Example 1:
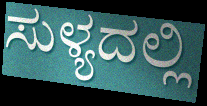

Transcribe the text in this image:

ಸುಳ್ಯದಲ್ಲಿ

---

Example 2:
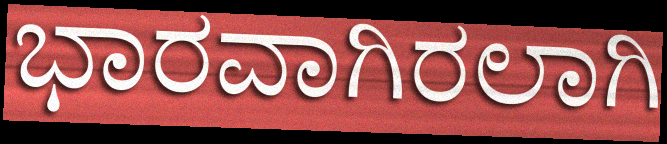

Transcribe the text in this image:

ಭಾರವಾಗಿರಲಾಗಿ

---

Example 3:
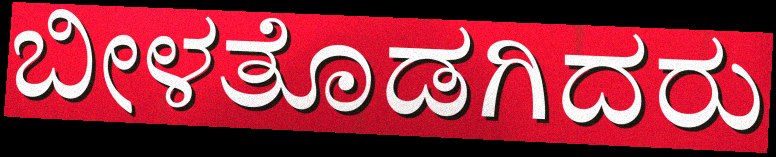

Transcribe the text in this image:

ಬೀಳತೊಡಗಿದರು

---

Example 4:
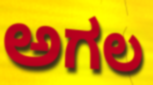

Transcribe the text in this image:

ಅಗಲ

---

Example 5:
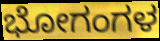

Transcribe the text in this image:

ಭೋಗಂಗಳ